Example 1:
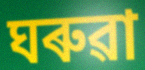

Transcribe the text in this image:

ঘৰুৱা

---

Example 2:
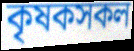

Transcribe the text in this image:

কৃষকসকল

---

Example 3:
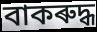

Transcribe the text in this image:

বাকৰুদ্ধ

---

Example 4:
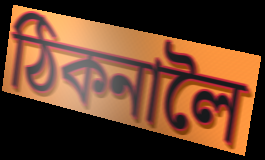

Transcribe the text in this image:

ঠিকনালৈ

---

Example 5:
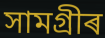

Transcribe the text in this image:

সামগ্ৰীৰ